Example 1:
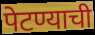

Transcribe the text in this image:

पेटण्याची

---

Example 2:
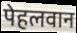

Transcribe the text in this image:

पेहलवान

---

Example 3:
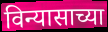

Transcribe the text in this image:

विन्यासाच्या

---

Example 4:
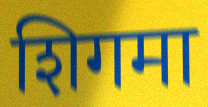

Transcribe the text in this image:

शिगमा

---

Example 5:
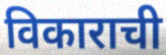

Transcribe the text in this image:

विकाराची